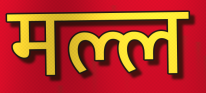
मल्ल